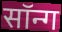
सॉन्ग